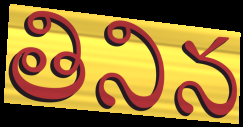
తినిన